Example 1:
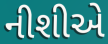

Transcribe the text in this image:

નીશીએ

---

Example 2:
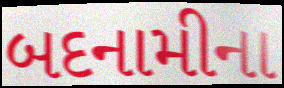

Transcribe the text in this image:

બદનામીના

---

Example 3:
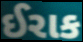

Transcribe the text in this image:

ઈરાક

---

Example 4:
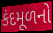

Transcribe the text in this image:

કંદમૂળનો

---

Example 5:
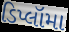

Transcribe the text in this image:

ડિપ્લૉમા